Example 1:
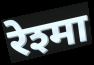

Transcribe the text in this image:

रेश्मा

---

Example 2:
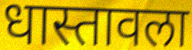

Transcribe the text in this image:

धास्तावला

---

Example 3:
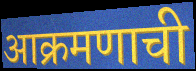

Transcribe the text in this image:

आक्रमणाची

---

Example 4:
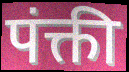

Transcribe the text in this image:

पंक्ती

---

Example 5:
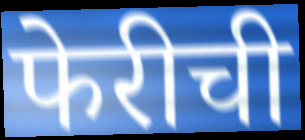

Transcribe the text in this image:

फेरीची